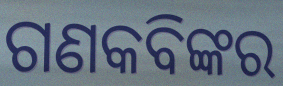
ଗଣକବିଙ୍କର